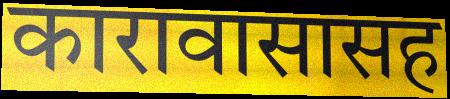
कारावासासह